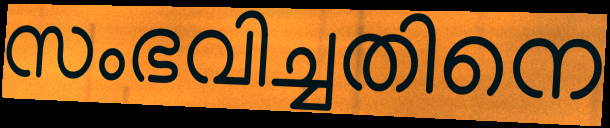
സംഭവിച്ചതിനെ